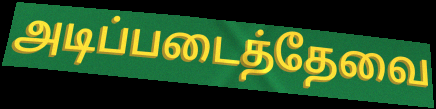
அடிப்படைத்தேவை